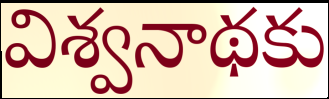
విశ్వనాథకు